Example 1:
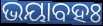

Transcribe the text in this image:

ଭୟାବହଃ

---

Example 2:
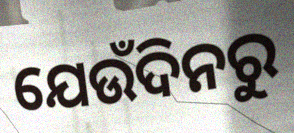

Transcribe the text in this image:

ଯେଉଁଦିନରୁ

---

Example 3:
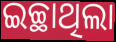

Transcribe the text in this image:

ଇଚ୍ଛାଥିଲା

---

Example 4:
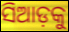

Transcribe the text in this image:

ସିଆଡ଼କୁ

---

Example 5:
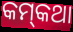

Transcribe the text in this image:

କମ୍‌କଥା